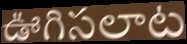
ఊగిసలాట